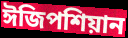
ঈজিপশিয়ান